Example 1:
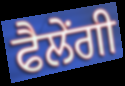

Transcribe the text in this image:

ਫੈਲੇਂਗੀ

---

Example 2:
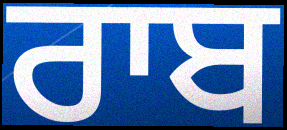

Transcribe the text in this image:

ਰਾਬ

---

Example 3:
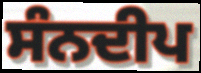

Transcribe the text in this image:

ਸੰਨਦੀਪ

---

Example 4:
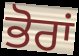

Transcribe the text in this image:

ਭੋਰਾਂ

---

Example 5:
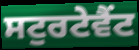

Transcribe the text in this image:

ਸਟੁਰਟੇਵੈਂਟ